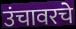
उंचावरचे